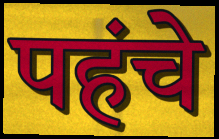
पहंचे